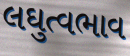
લઘુત્વભાવ